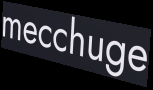
mecchuge